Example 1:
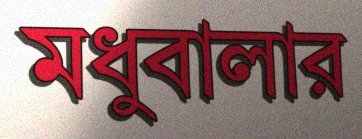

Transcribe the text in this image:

মধুবালার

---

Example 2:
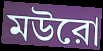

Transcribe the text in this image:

মউরো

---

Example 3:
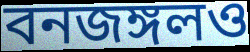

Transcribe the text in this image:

বনজঙ্গলও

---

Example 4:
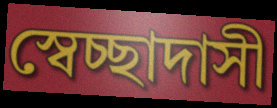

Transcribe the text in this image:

স্বেচ্ছাদাসী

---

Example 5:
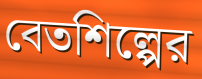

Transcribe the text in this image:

বেতশিল্পের